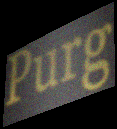
Purg